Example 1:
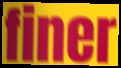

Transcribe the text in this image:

finer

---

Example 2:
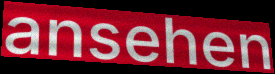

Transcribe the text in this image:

ansehen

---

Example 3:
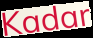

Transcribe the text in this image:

Kadar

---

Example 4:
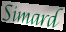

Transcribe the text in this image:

Simard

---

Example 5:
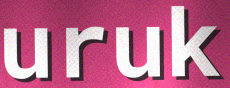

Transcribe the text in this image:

uruk